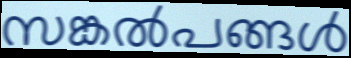
സങ്കൽപങ്ങൾ